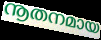
നൂതനമായ